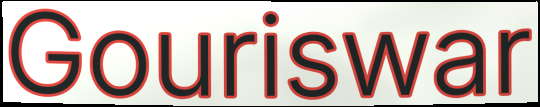
Gouriswar